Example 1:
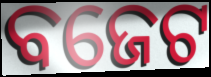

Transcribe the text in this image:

ବଜେଟ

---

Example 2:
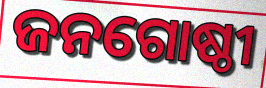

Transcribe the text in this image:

ଜନଗୋଷ୍ଠୀ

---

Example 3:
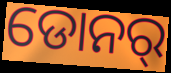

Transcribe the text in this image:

ଡୋନର୍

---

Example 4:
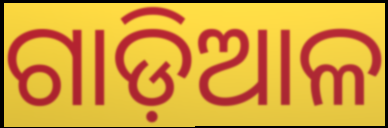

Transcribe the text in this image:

ଗାଡ଼ିଆଳ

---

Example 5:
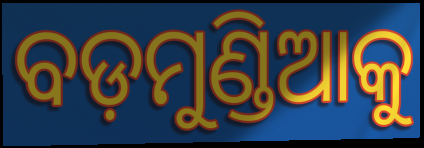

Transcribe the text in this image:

ବଡ଼ମୁଣ୍ଡିଆକୁ